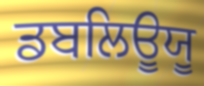
ਡਬਲਿਊਯੂ